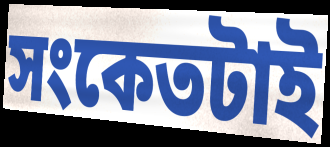
সংকেতটাই